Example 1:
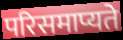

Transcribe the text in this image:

परिसमाप्यते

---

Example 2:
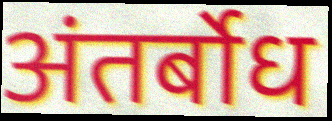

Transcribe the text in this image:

अंतर्बोध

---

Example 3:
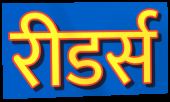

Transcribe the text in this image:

रीडर्स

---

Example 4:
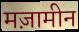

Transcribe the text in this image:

मज़ामीन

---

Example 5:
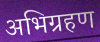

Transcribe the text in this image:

अभिग्रहण